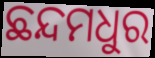
ଛନ୍ଦମଧୁର